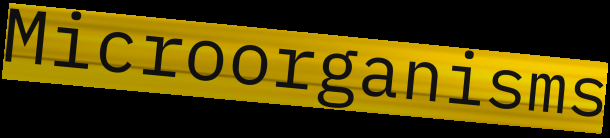
Microorganisms